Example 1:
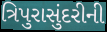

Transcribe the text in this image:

ત્રિપુરાસુંદરીની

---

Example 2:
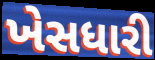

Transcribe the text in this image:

ખેસધારી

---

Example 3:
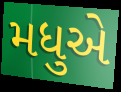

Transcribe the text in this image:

મધુએ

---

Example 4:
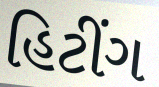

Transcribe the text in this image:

હિટીંગ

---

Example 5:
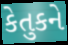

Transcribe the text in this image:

કેતુકને